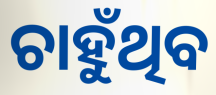
ଚାହୁଁଥିବ